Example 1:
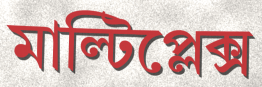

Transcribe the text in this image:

মাল্টিপ্লেক্স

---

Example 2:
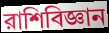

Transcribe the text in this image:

রাশিবিজ্ঞান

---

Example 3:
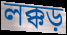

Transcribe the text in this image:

লক্কড়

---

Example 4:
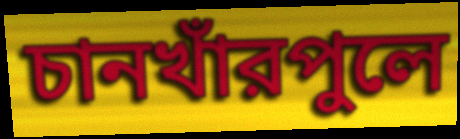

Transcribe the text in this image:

চানখাঁরপুলে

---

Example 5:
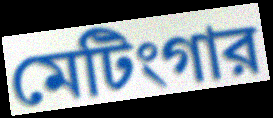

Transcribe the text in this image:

মেটিংগার